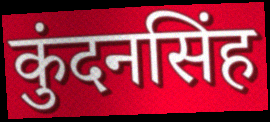
कुंदनसिंह